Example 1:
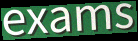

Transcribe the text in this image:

exams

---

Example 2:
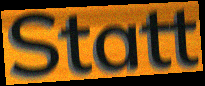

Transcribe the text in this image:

Statt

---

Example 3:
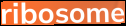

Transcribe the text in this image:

ribosome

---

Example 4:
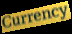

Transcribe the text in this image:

Currency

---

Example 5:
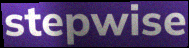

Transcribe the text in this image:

stepwise